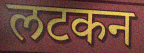
लटकन